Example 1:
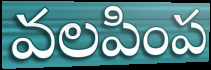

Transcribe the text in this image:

వలపింప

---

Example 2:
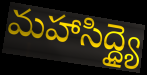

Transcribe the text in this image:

మహాసిద్ధ్యై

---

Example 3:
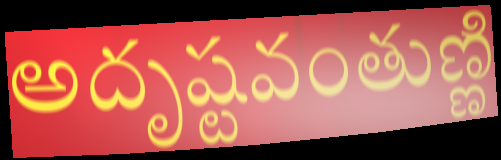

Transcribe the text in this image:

అదృష్టవంతుణ్ణి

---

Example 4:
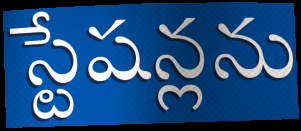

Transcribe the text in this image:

స్టేషన్లను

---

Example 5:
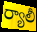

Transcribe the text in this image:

ర్యాలీ